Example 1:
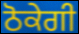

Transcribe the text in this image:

ਠੋਕੇਗੀ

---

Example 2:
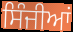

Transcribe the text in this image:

ਸਿੰਜੀਆਂ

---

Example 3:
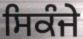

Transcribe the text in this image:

ਸਿਕੰਜੇ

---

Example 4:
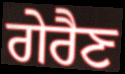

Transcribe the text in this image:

ਗੇਰੈਣ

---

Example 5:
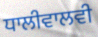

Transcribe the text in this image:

ਧਾਲੀਵਾਲਵੀ